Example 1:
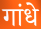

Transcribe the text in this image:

गांधे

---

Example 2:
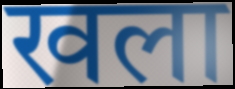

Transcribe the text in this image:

खला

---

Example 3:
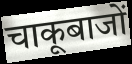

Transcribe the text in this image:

चाकूबाजों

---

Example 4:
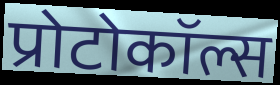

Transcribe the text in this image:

प्रोटोकॉल्स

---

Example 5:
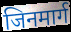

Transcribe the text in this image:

जिनमार्ग